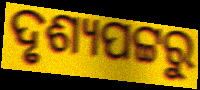
ଦୃଶ୍ୟପଟ୍ଟରୁ